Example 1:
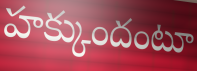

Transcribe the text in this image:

హక్కుందంటూ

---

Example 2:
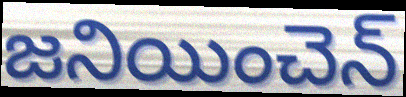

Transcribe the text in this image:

జనియించెన్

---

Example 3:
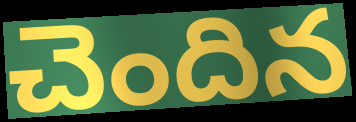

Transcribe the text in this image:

చెందిన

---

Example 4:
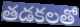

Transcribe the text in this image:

తడకలతో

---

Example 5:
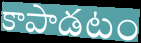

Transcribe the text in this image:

కాపాడటం